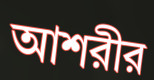
আশরীর